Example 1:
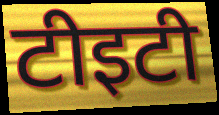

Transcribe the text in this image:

टीइटी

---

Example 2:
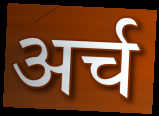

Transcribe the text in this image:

अर्च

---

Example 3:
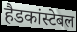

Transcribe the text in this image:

हैडकांस्टेबल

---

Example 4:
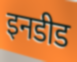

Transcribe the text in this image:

इनडीड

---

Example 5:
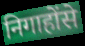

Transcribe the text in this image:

निगाहोंसे